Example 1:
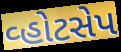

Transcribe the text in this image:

વ્હોટસેપ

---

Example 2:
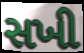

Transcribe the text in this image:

સખી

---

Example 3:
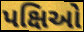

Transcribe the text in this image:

પક્ષિઓ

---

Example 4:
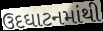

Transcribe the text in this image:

ઉદઘાટનમાંથી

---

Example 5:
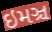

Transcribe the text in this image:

ઇમઞ્ચ